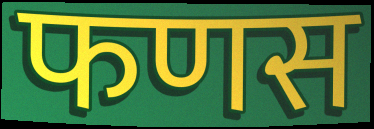
फणस